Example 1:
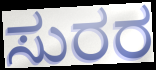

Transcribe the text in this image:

ಸುರರ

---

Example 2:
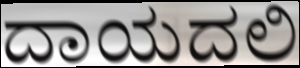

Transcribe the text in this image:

ದಾಯದಲಿ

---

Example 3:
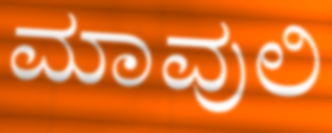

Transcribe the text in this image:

ಮಾವುಲಿ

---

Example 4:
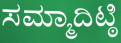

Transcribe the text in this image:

ಸಮ್ಮಾದಿಟ್ಠಿ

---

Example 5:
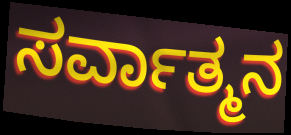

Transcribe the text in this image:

ಸರ್ವಾತ್ಮನ